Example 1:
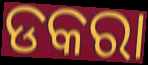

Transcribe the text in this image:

ଡକରା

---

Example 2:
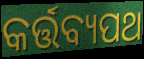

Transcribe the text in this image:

କର୍ତ୍ତବ୍ୟପଥ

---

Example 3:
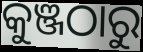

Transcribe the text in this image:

କୁଞ୍ଜଠାରୁ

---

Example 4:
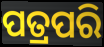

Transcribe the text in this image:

ପତ୍ରପରି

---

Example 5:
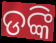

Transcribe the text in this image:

ଡଙ୍କି